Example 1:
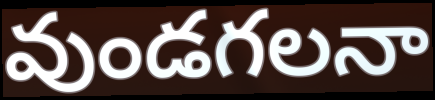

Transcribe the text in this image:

వుండగలనా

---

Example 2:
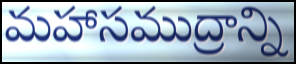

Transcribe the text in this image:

మహాసముద్రాన్ని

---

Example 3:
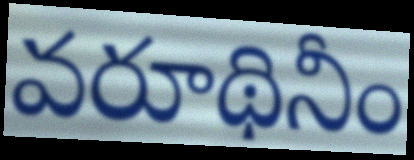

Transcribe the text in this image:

వరూథినీం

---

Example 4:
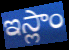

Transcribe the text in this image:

ఇస్లాం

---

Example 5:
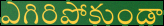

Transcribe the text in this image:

ఎగిరిపోకుండా